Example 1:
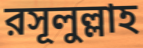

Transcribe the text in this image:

রসূলুল্লাহ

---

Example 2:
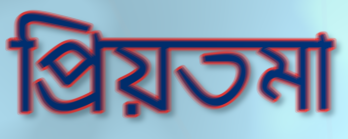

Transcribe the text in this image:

প্রিয়তমা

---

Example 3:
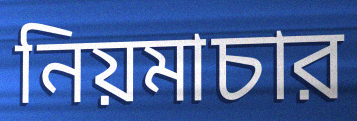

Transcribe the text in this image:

নিয়মাচার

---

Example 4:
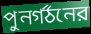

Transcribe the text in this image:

পুনর্গঠনের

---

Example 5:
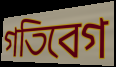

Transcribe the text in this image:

গতিবেগ